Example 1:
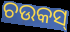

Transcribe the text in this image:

ଚଉକସ୍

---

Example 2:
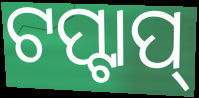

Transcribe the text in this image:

ଟପ୍ଟାପ୍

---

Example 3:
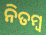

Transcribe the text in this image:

ନିତମ୍ବ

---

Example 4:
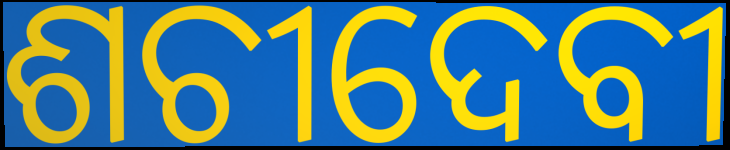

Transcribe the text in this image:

ଶଚୀଦେବୀ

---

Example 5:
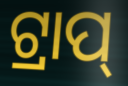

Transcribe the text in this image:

ଟ୍ରାପ୍